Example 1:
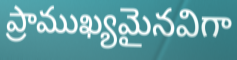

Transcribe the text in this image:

ప్రాముఖ్యమైనవిగా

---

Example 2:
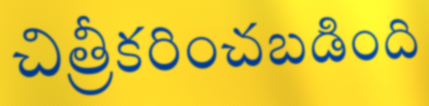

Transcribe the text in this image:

చిత్రీకరించబడింది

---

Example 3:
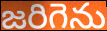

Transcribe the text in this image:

జరిగెను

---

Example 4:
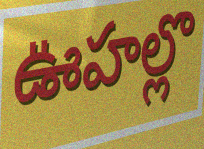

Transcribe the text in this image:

ఊహల్లొ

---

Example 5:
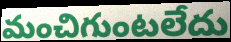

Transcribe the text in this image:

మంచిగుంటలేదు